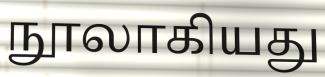
நூலாகியது